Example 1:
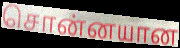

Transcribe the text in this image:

சொன்னயான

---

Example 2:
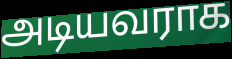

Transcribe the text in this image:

அடியவராக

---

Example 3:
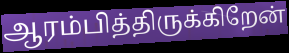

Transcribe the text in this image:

ஆரம்பித்திருக்கிறேன்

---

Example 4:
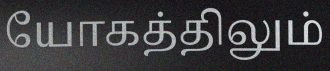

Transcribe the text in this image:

யோகத்திலும்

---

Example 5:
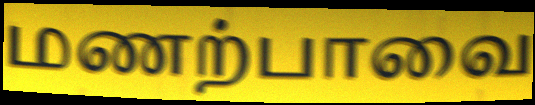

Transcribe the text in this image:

மணற்பாவை